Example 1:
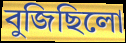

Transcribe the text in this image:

বুজিছিলো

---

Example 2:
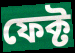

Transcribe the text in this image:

ফেক্ট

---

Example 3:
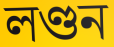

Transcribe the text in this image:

লণ্ডন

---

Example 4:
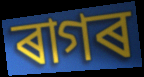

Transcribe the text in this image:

ৰাগৰ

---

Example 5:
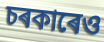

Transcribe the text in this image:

চৰকাৰেও